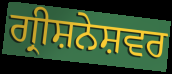
ਗ੍ਰੀਸ਼ਨੇਸ਼ਵਰ